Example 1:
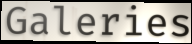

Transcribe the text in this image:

Galeries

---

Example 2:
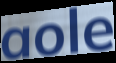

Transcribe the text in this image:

aole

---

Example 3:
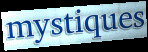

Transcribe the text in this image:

mystiques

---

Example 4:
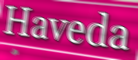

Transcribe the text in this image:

Haveda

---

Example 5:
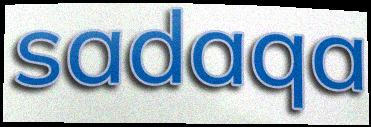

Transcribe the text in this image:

sadaqa